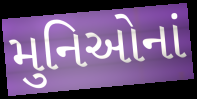
મુનિઓનાં